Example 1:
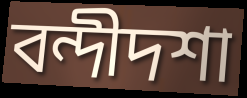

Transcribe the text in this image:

বন্দীদশা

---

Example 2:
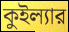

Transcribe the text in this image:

কুইল্যার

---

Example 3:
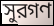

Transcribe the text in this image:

সুরগণ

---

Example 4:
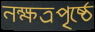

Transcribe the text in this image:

নক্ষত্রপৃষ্ঠে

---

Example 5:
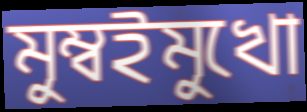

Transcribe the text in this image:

মুম্বইমুখো